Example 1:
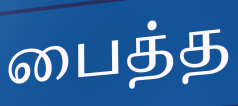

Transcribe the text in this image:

பைத்த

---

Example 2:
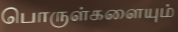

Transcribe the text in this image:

பொருள்களையும்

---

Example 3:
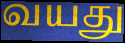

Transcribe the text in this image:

வயது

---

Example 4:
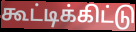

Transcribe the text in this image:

கூட்டிக்கிட்டு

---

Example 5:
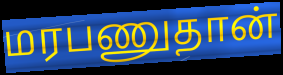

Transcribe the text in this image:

மரபணுதான்